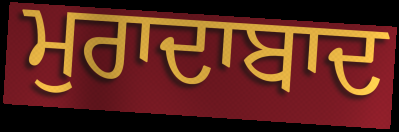
ਮੁਰਾਦਾਬਾਦ